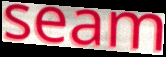
seam